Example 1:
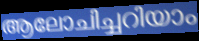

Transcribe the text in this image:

ആലോചിച്ചറിയാം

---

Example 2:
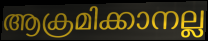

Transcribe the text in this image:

ആക്രമിക്കാനല്ല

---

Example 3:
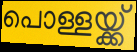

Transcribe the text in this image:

പൊള്ളയ്ക്ക്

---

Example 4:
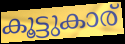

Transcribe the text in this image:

കൂട്ടുകാര്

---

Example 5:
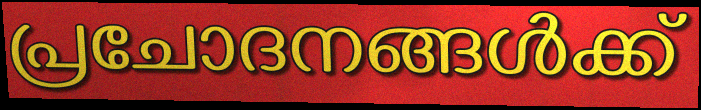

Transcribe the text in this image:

പ്രചോദനങ്ങൾക്ക്